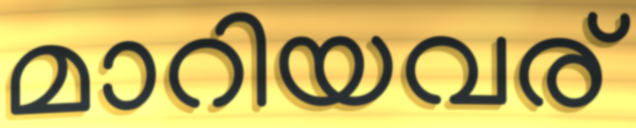
മാറിയവര്